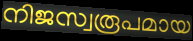
നിജസ്വരൂപമായ